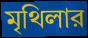
মৃথিলার